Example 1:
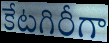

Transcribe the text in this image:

కేటగిరీగా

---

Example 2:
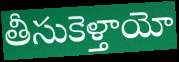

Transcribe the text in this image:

తీసుకెళ్తాయో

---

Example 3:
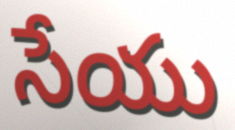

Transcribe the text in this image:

సేయు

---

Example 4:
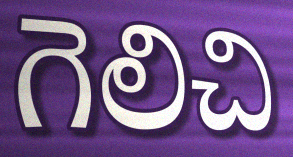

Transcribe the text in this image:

గెలిచి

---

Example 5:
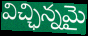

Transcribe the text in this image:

విచ్ఛిన్నమై